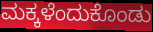
ಮಕ್ಕಳೆಂದುಕೊಂಡು